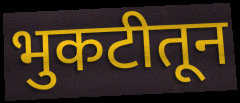
भुकटीतून